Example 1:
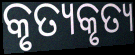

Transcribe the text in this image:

କୃତ୍ଯକୃତ୍ଯ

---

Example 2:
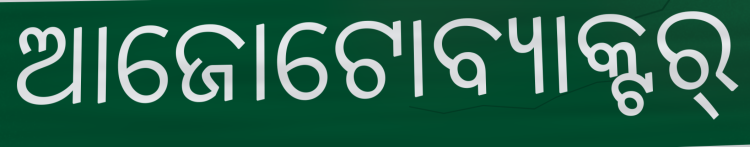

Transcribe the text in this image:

ଆଜୋଟୋବ୍ଯାକ୍ଟର୍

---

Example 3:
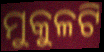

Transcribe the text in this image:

ମୁକୁଳଟି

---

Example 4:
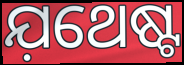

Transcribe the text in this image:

ଯ଼ଥେଷ୍ଟ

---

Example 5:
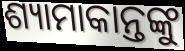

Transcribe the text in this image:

ଶ୍ୟାମାକାନ୍ତଙ୍କୁ